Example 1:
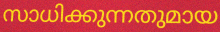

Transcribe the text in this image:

സാധിക്കുന്നതുമായ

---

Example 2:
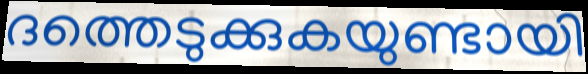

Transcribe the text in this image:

ദത്തെടുക്കുകയുണ്ടായി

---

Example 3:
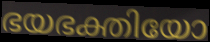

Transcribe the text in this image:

ഭയഭക്തിയോ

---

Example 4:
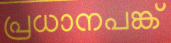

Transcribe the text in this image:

പ്രധാനപങ്ക്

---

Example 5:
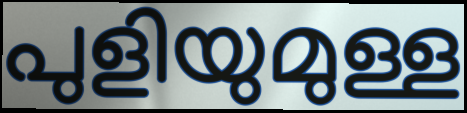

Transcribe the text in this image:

പുളിയുമുള്ള